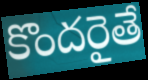
కొందరైతే